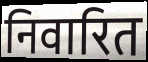
निवारित